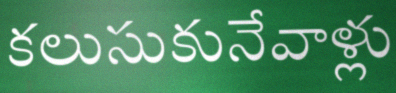
కలుసుకునేవాళ్లు